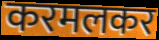
करमलकर